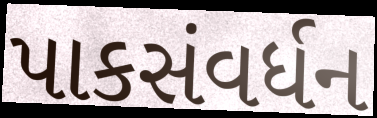
પાકસંવર્ધન